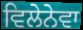
ਵਿਲੇਨੇਵਾ